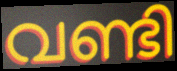
വണ്ടി